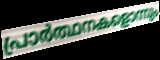
പ്രാർത്ഥനകളൊന്നും